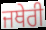
ਜਥੇਰੀ